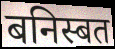
बनिस्बत